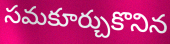
సమకూర్చుకొనిన